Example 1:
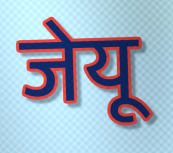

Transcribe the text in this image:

जेयू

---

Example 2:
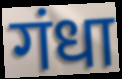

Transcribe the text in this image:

गंधा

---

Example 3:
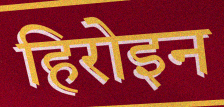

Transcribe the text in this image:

हिरोइन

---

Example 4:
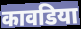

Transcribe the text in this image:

कावडिया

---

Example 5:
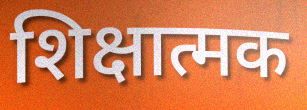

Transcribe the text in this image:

शिक्षात्मक